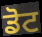
ਡੋਟ